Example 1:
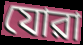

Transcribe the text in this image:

যোৱা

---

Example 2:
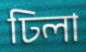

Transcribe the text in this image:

ঢিলা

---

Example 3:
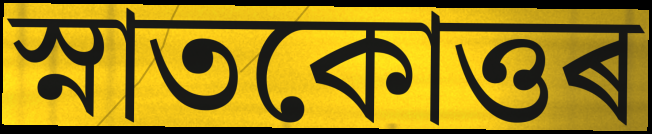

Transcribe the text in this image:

স্নাতকোত্তৰ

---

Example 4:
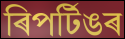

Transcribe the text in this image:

ৰিপৰ্টিঙৰ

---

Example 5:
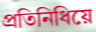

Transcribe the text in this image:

প্ৰতিনিধিয়ে